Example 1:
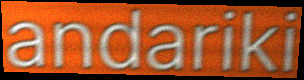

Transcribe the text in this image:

andariki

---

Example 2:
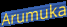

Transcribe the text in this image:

Arumuka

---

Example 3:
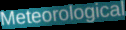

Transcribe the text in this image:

Meteorological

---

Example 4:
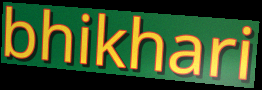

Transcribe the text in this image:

bhikhari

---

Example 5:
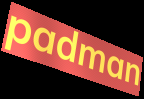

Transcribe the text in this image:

padman